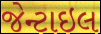
જેન્ટાઇલ